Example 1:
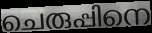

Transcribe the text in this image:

ചെരുപ്പിനെ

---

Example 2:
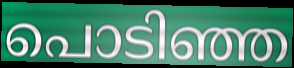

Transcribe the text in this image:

പൊടിഞ്ഞ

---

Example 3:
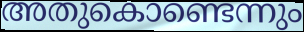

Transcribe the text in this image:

അതുകൊണ്ടെന്നും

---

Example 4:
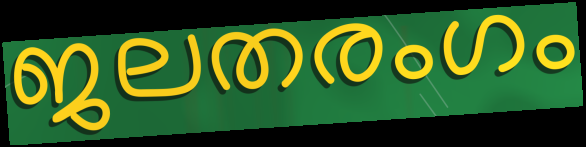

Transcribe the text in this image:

ജലതരംഗം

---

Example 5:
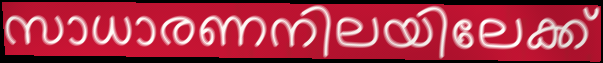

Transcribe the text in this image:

സാധാരണനിലയിലേക്ക്